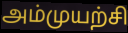
அம்முயற்சி